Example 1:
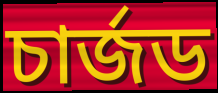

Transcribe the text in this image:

চার্জড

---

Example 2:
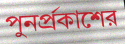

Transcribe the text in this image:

পুনর্প্রকাশের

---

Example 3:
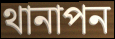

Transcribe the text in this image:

থানাপন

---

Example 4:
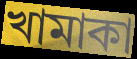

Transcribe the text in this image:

খামাকা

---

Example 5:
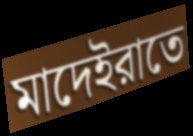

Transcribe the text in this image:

মাদেইরাতে